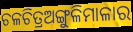
ଚଳଚିତ୍ରଅଙ୍ଗୁଳିମାଳାର